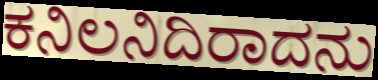
ಕನಿಲನಿದಿರಾದನು